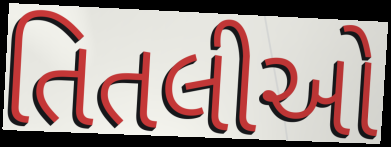
તિતલીઓ